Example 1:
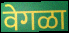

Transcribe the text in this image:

वेगळा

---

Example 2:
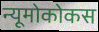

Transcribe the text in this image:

न्यूमोकोकस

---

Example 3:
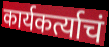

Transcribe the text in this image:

कार्यकर्त्याचं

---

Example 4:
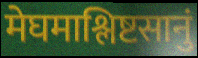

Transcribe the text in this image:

मेघमाश्लिष्टसानुं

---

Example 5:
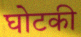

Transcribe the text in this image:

घोटकी